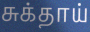
சுக்தாய்